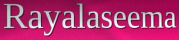
Rayalaseema